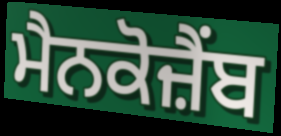
ਮੈਨਕੋਜ਼ੈਂਬ